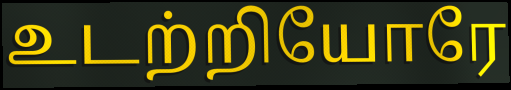
உடற்றியோரே